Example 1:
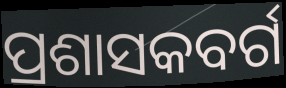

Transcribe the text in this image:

ପ୍ରଶାସକବର୍ଗ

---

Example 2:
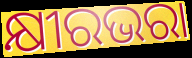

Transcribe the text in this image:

କ୍ଷୀରଭରା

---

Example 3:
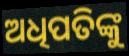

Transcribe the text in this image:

ଅଧିପତିଙ୍କୁ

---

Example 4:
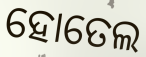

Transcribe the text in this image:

ହୋତେଲ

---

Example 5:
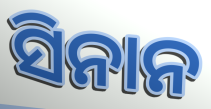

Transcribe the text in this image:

ସିନାନ